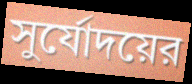
সুর্যোদয়ের